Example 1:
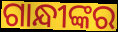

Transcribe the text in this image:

ଗାନ୍ଧୀଙ୍କର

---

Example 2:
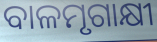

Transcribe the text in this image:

ବାଳମୃଗାକ୍ଷୀ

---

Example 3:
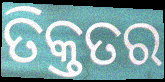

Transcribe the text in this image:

ତିକ୍ତତର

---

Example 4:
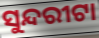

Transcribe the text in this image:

ସୁନ୍ଦରୀଟା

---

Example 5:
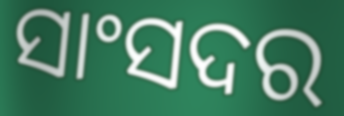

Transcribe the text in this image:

ସାଂସଦର